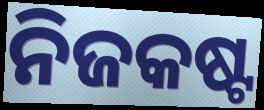
ନିଜକଷ୍ଟ